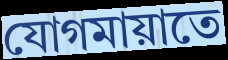
যোগমায়াতে